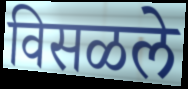
विसळले